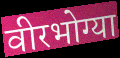
वीरभोग्या